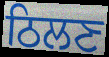
ਠਿਲਣ